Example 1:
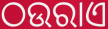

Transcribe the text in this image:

ଠଉରାଏ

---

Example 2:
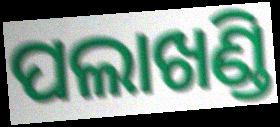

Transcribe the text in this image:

ପଲାଖଣ୍ଡି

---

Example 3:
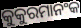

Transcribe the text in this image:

କୁକୁରମାନଂକ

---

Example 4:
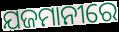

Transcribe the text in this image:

ଯଜମାନୀରେ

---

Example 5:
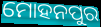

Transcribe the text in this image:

ମୋହନପୁର